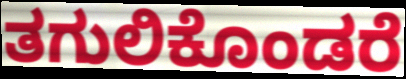
ತಗುಲಿಕೊಂಡರೆ